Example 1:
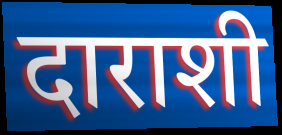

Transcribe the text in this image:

दाराशी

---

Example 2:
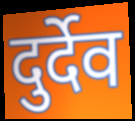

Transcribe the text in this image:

दुर्देव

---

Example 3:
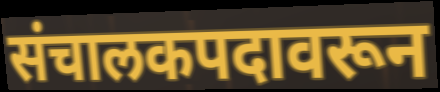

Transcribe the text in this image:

संचालकपदावरून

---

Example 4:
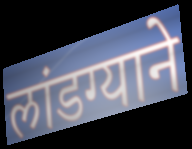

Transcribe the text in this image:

लांडग्याने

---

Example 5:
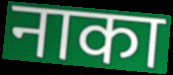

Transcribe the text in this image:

नाका